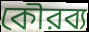
কৌরব্য